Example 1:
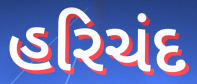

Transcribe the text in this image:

હરિચંદ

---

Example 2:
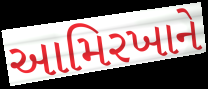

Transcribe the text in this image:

આમિરખાને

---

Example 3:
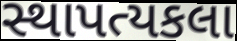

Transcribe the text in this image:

સ્થાપત્યકલા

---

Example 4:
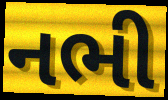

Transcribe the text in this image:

નભી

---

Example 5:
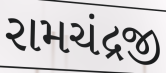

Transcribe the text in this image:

રામચંદ્રજી